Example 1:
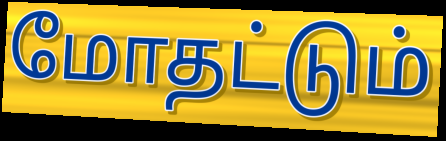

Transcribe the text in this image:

மோதட்டும்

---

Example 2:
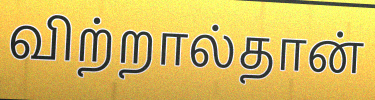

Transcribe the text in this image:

விற்றால்தான்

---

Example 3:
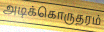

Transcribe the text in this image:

அடிக்கொருதரம்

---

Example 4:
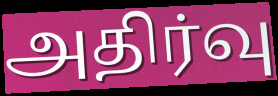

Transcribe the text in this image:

அதிர்வு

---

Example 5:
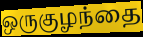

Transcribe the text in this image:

ஒருகுழந்தை